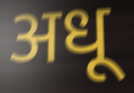
अधू